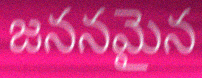
జననమైన